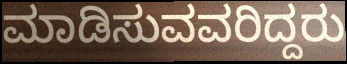
ಮಾಡಿಸುವವರಿದ್ದರು